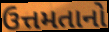
ઉત્તમતાનો